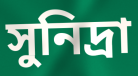
সুনিদ্রা